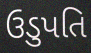
ઉડુપતિ